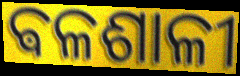
ଵଳଶାଳୀ